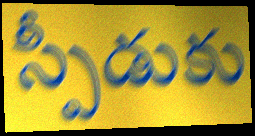
స్పీడుకు